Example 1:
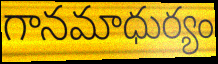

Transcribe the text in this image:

గానమాధుర్యం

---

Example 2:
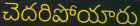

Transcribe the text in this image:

చెదరిపోయారు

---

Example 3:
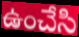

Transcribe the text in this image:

ఉంచేసి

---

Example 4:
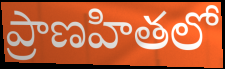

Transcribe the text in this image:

ప్రాణహితలో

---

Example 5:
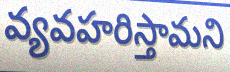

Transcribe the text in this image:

వ్యవహరిస్తామని